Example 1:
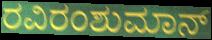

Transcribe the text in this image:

ರವಿರಂಶುಮಾನ್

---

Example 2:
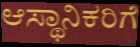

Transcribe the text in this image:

ಆಸ್ಥಾನಿಕರಿಗೆ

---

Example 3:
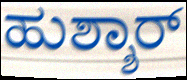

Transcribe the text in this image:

ಹುಶ್ಶಾರ್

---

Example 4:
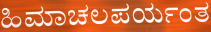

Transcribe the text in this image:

ಹಿಮಾಚಲಪರ್ಯಂತ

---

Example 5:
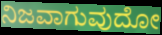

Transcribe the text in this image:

ನಿಜವಾಗುವುದೋ